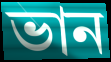
ভান